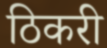
ठिकरी